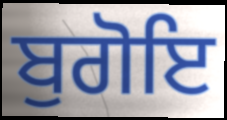
ਬੁਗੋਇ